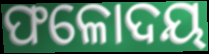
ଫଳୋଦୟ